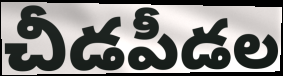
చీడపీడల